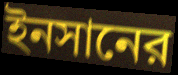
ইনসানের